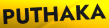
PUTHAKA